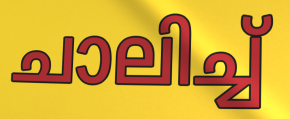
ചാലിച്ച്